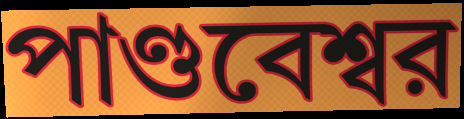
পাণ্ডবেশ্বর